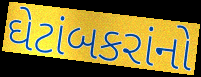
ઘેટાંબકરાંનો